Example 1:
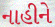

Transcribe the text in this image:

નાહીને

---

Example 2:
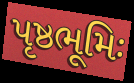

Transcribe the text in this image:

પૃષ્ઠભૂમિઃ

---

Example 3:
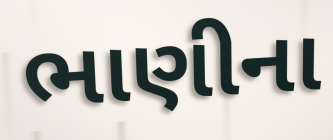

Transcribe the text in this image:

ભાણીના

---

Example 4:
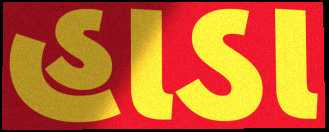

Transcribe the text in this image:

હાડા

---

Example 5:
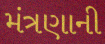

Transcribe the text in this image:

મંત્રણાની